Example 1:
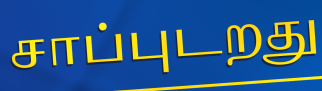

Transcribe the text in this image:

சாப்புடறது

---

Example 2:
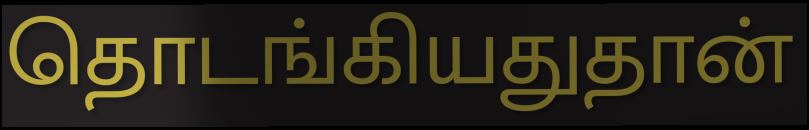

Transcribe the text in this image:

தொடங்கியதுதான்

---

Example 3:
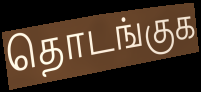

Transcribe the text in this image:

தொடங்குக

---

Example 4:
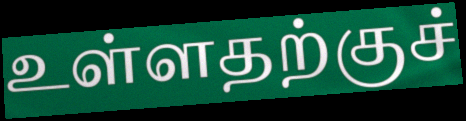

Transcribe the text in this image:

உள்ளதற்குச்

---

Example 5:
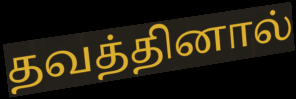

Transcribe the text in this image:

தவத்தினால்